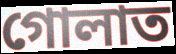
গোলাত